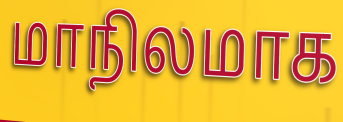
மாநிலமாக